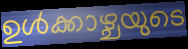
ഉൾക്കാഴ്ചയുടെ